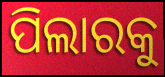
ପିଲାରକୁ